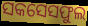
ସକସେସଫୁଲ